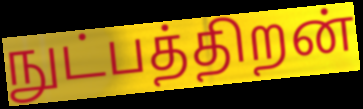
நுட்பத்திறன்